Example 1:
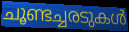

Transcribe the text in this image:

ചൂണ്ടച്ചരടുകൾ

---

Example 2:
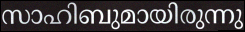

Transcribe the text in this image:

സാഹിബുമായിരുന്നു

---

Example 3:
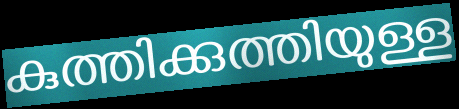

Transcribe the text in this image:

കുത്തിക്കുത്തിയുള്ള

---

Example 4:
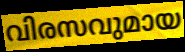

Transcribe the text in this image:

വിരസവുമായ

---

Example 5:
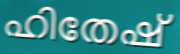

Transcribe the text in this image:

ഹിതേഷ്